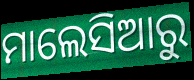
ମାଲେସିଆରୁ